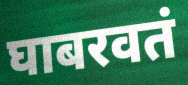
घाबरवतं